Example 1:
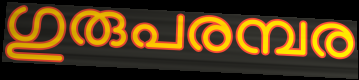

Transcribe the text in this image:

ഗുരുപരമ്പര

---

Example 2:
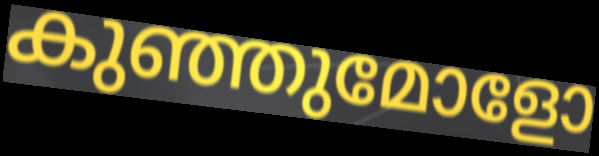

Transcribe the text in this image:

കുഞ്ഞുമോളോ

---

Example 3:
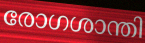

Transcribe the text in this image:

രോഗശാന്തി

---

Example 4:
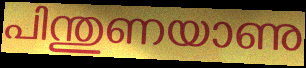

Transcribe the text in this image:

പിന്തുണയാണു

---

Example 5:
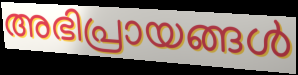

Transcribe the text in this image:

അഭിപ്രായങ്ങൾ